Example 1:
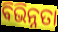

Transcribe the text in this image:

ବିଭିନ୍ନତା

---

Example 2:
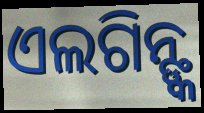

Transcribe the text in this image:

ଏଲଗିନ୍ଙ୍କ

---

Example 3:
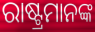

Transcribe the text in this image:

ରାଷ୍ଟ୍ରମାନଙ୍କ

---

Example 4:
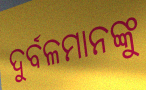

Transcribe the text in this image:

ଦୁର୍ବଳମାନଙ୍କୁ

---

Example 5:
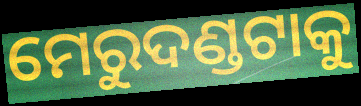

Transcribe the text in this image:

ମେରୁଦଣ୍ଡଟାକୁ